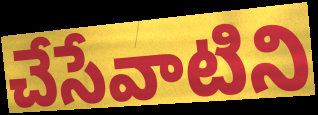
చేసేవాటిని